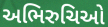
અભિરુચિઓ